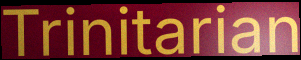
Trinitarian